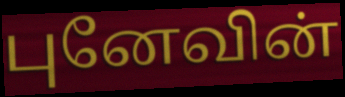
புனேவின்